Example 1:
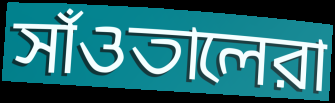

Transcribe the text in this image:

সাঁওতালেরা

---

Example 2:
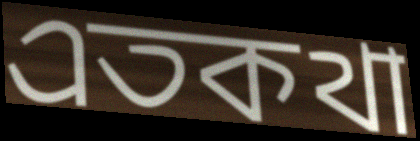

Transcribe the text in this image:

এতকথা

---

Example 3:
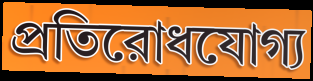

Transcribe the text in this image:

প্রতিরোধযোগ্য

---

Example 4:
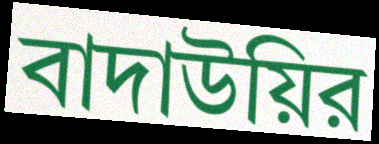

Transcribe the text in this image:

বাদাউয়ির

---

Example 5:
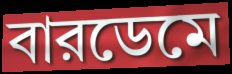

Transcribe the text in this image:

বারডেমে